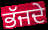
ਭੱਜਦੇ